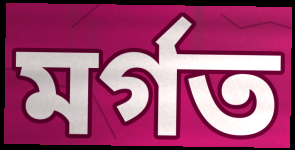
মৰ্গত